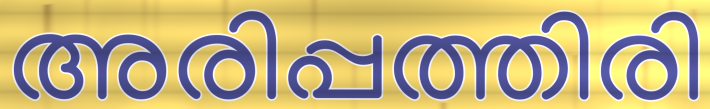
അരിപ്പത്തിരി